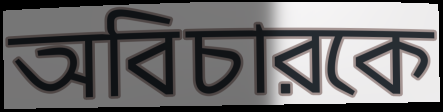
অবিচারকে